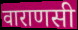
वाराणसी